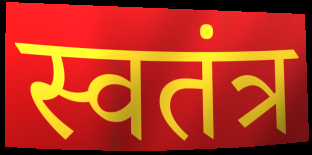
स्वतंत्र